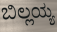
ಬಿಲ್ಲಯ್ಯ